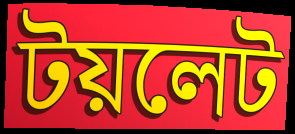
টয়লেট